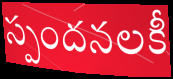
స్పందనలకీ